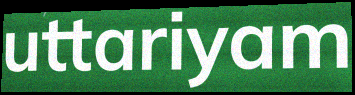
uttariyam